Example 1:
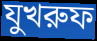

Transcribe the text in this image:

যুখরুফ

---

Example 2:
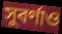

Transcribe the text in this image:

সুবর্ণাও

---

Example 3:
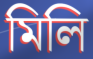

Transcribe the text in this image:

মিলি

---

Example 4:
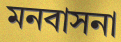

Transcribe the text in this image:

মনবাসনা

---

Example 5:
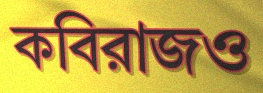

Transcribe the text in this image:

কবিরাজও